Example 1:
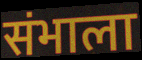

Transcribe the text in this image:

संभाला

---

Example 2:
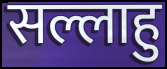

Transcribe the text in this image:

सल्लाहु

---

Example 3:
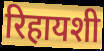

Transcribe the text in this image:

रिहायशी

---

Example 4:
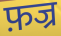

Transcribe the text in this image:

फ़ज्र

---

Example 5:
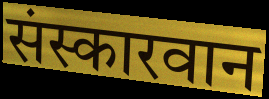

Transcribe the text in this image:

संस्कारवान